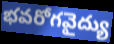
భవరోగవైద్యు